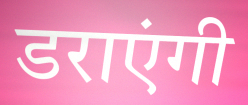
डराएंगी